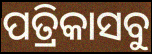
ପତ୍ରିକାସବୁ